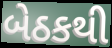
બેઠકથી